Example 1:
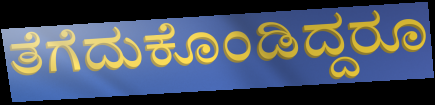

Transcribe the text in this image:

ತೆಗೆದುಕೊಂಡಿದ್ದರೂ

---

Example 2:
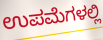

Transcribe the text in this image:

ಉಪಮೆಗಳಲ್ಲಿ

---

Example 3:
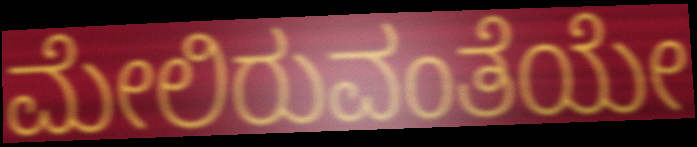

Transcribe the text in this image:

ಮೇಲಿರುವಂತೆಯೇ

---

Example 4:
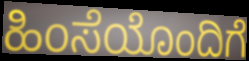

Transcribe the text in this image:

ಹಿಂಸೆಯೊಂದಿಗೆ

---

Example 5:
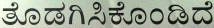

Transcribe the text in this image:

ತೊಡಗಿಸಿಕೊಂಡಿದೆ